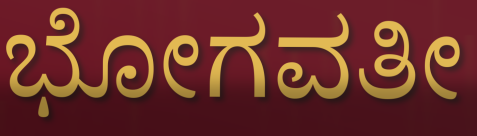
ಭೋಗವತೀ